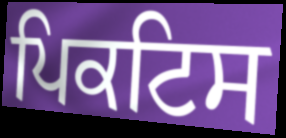
ਪਿਕਟਿਸ